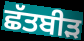
ਛੱਤਬੀੜ